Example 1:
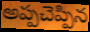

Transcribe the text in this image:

అప్పచెప్పిన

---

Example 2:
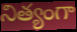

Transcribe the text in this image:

నిత్యంగా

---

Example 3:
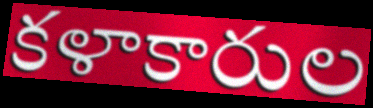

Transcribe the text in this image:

కళాకారుల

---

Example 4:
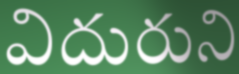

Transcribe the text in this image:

విదురుని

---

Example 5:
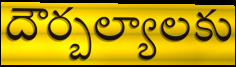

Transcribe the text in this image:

దౌర్బల్యాలకు